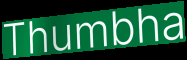
Thumbha